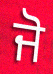
ਜੋ